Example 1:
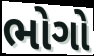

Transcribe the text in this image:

ભોગો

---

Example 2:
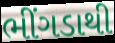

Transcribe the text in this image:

ભીંગડાથી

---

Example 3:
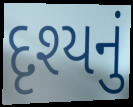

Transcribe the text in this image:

દૃશ્યનું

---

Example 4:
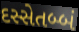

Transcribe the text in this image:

દસ્સેતબ્બં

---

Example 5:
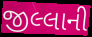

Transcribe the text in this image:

જીલ્લાની